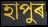
হাপুৰ